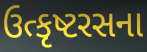
ઉત્કૃષ્ટરસના